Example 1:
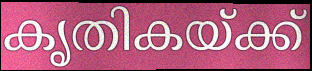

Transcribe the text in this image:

കൃതികയ്ക്ക്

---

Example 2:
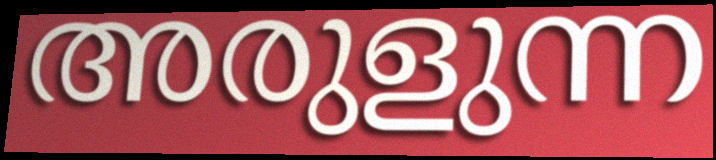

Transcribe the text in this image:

അരുളുന്ന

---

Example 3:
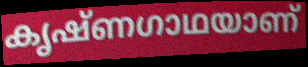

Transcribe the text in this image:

കൃഷ്ണഗാഥയാണ്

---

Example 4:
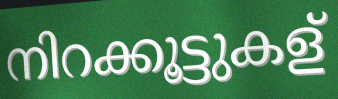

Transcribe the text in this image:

നിറക്കൂട്ടുകള്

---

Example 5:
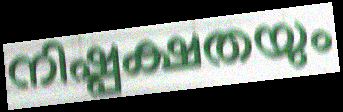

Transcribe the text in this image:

നിഷ്പക്ഷതയും